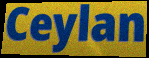
Ceylan